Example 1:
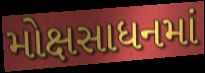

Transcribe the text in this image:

મોક્ષસાધનમાં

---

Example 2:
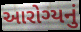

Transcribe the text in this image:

આરોગ્યનું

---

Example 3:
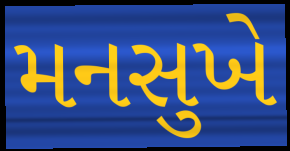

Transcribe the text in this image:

મનસુખે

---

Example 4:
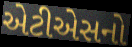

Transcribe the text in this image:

એટીએસનો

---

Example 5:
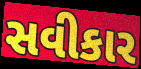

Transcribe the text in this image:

સવીકાર